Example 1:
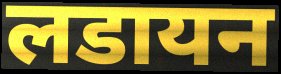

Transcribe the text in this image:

लडायन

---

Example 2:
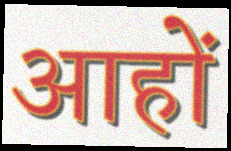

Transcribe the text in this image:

आहों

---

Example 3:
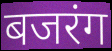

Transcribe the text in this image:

बजरंग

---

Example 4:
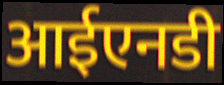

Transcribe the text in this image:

आईएनडी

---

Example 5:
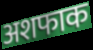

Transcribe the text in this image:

अशफाक